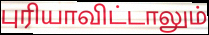
புரியாவிட்டாலும்